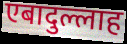
एबादुल्लाह